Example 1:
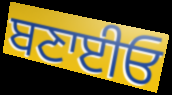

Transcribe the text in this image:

ਬਣਾਈਓ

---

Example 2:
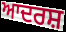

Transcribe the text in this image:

ਆਦਰਸ਼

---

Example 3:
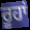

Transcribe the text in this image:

ਰੂਹਾਂ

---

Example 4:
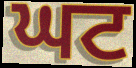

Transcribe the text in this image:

ਘਟ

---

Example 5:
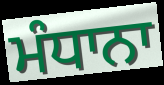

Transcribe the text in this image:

ਮੰਧਾਨਾ